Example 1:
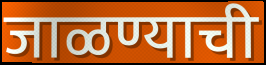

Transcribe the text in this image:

जाळण्याची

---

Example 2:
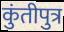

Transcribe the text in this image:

कुंतीपुत्र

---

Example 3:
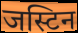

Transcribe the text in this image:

जस्टिन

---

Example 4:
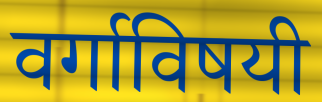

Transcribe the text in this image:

वर्गाविषयी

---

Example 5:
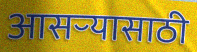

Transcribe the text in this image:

आसऱ्यासाठी